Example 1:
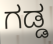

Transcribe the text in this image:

ಗಡ್ಡ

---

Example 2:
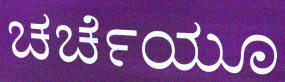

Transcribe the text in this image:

ಚರ್ಚೆಯೂ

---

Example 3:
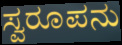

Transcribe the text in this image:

ಸ್ವರೂಪನು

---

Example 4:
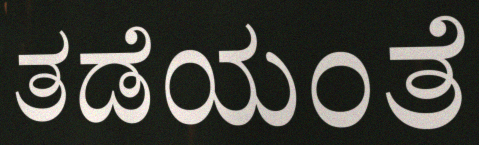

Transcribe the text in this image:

ತಡೆಯಂತೆ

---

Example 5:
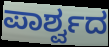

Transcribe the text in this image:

ಪಾರ್ಶ್ವದ